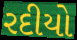
રદીયો